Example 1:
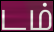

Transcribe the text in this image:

டம்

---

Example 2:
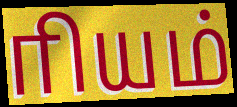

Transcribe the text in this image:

ரியம்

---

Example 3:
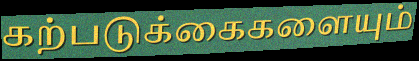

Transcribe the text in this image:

கற்படுக்கைகளையும்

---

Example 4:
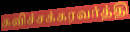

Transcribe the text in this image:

கவிச்சக்கரவர்த்தி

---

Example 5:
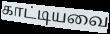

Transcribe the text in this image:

காட்டியவை